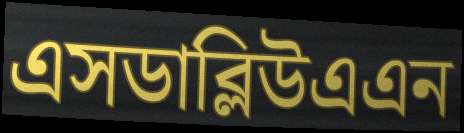
এসডাব্লিউএএন